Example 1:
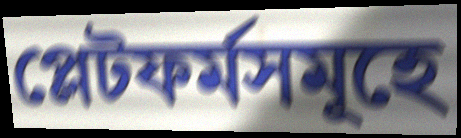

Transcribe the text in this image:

প্লেটফৰ্মসমূহে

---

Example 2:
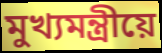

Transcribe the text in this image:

মুখ্যমন্ত্ৰীয়ে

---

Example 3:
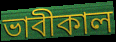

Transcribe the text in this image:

ভাবীকাল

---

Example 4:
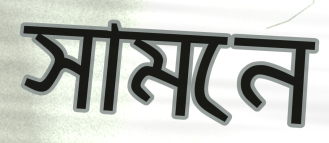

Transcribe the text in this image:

সামনে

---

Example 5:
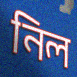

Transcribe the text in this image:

নিল